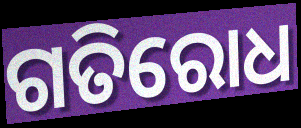
ଗତିରୋଧ